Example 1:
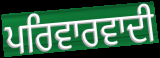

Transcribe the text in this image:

ਪਰਿਵਾਰਵਾਦੀ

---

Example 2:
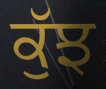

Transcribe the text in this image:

ਕੁੱਝ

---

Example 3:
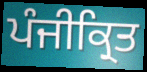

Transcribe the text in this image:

ਪੰਜੀਕ੍ਰਿਤ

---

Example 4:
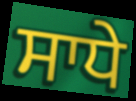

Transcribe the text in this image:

ਸਾਧੇ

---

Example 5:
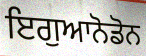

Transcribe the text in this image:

ਇਗੁਆਨੋਡੋਨ